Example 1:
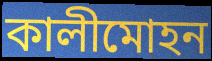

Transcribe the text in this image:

কালীমোহন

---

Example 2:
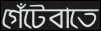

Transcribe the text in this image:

গেঁটেবাতে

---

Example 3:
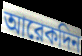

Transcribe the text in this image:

আরেকদিন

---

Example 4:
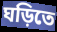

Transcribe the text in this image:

ঘড়িতে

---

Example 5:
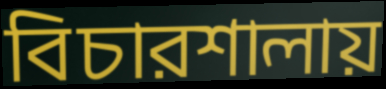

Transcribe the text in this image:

বিচারশালায়